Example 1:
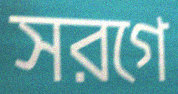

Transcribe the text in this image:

সরগে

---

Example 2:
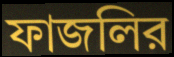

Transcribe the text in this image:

ফাজলির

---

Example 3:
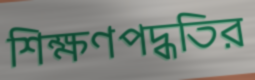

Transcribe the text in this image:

শিক্ষণপদ্ধতির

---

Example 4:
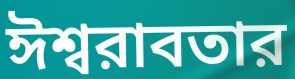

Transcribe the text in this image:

ঈশ্বরাবতার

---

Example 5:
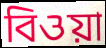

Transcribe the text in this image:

বিওয়া